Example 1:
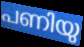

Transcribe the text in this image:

പണിയു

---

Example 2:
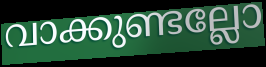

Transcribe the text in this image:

വാക്കുണ്ടല്ലോ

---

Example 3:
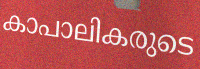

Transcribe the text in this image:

കാപാലികരുടെ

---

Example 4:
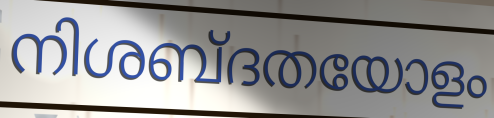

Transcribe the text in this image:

നിശബ്ദതയോളം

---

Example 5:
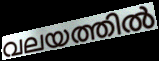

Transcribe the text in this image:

വലയത്തിൽ